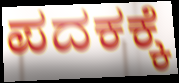
ಪದಕಕ್ಕೆ